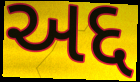
અદ્દ